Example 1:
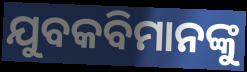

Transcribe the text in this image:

ଯୁବକବିମାନଙ୍କୁ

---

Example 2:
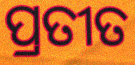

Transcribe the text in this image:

ପ୍ରତୀତ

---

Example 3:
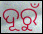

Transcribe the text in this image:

ଦୂରୁଁ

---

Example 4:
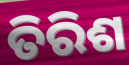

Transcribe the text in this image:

ତିରିଶ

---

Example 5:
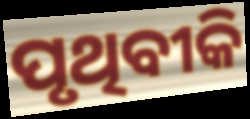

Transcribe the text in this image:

ପୃଥିବୀକି